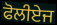
ਫੋਲੀਏਜ